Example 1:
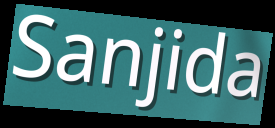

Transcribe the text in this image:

Sanjida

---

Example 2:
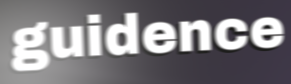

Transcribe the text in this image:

guidence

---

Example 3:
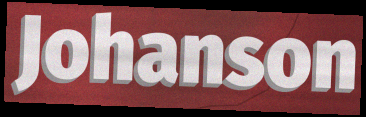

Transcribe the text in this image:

Johanson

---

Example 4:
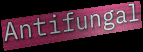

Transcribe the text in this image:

Antifungal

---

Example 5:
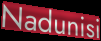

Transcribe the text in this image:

Nadunisi